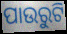
ପାଉରୁଟି